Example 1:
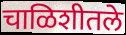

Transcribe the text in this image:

चाळिशीतले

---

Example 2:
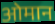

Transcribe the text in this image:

ओमान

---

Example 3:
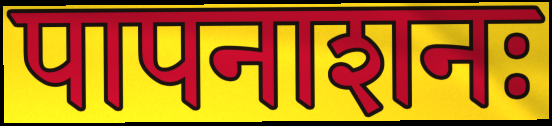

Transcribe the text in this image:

पापनाशनः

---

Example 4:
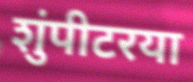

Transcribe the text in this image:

शुंपीटरया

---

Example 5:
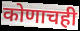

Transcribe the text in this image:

कोणाचही